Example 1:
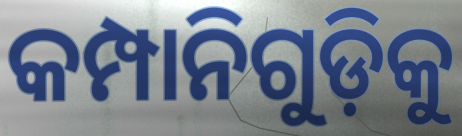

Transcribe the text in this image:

କମ୍ପାନିଗୁଡ଼ିକୁ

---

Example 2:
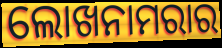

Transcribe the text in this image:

ଲୋଖନାମରାର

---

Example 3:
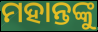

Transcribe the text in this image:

ମହାନ୍ତଙ୍କୁ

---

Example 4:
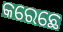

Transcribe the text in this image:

କରେଛେ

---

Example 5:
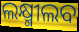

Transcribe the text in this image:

ଲକ୍ଷ୍ମୀଲବ